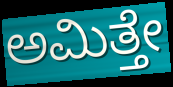
ಅಮಿತ್ತೇ